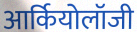
आर्कियोलॉजी